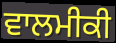
ਵਾਲਮੀਕੀ